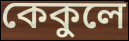
কেকুলে